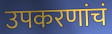
उपकरणांचं